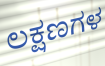
ಲಕ್ಷಣಗಳ